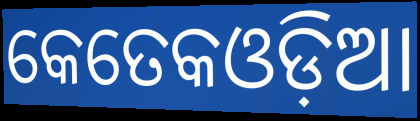
କେତେକଓଡ଼ିଆ